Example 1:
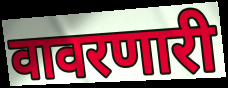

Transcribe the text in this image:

वावरणारी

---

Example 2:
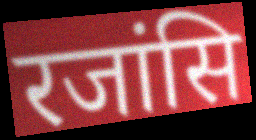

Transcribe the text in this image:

रजांसि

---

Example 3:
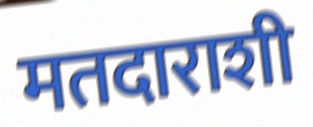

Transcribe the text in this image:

मतदाराशी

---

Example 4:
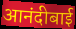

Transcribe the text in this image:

आनंदीबाई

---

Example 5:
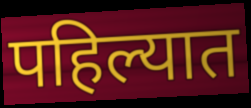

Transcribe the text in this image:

पहिल्यात